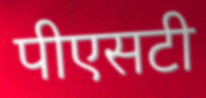
पीएसटी